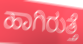
ಹಾಗಿರುತ್ತೆ